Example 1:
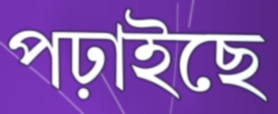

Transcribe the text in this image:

পঢ়াইছে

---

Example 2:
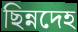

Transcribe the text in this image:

ছিন্নদেহ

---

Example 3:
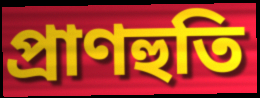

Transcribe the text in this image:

প্ৰাণহুতি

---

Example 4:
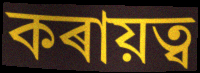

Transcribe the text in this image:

কৰায়ত্ব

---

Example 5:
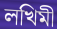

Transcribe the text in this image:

লখিমী